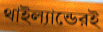
থাইল্যান্ডেরই